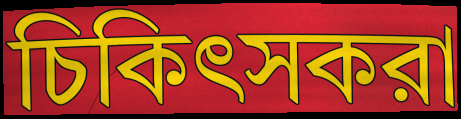
চিকিৎসকরা